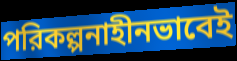
পরিকল্পনাহীনভাবেই